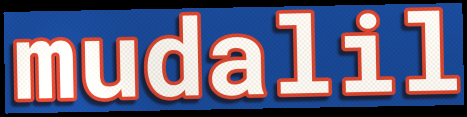
mudalil